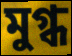
মুগ্ধ